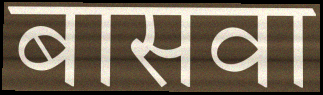
बासवा